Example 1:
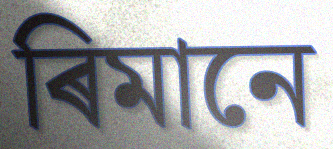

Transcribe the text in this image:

ৰিমানে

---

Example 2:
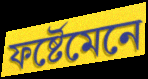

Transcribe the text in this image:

ফৰ্ষ্টেমেনে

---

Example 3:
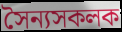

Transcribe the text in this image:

সৈন্যসকলক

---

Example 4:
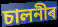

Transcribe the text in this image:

চালনীৰ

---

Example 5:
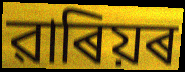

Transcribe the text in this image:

ৱাৰিয়ৰ